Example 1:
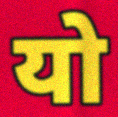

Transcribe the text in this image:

यो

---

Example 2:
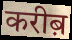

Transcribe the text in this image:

करीब़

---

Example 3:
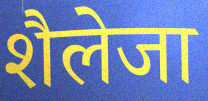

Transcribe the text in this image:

शैलेजा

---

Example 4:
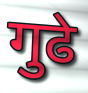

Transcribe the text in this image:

गुढे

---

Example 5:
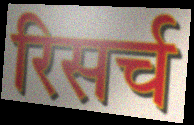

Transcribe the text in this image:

रिसर्च